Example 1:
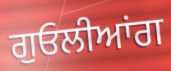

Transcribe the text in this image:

ਗੁਓਲੀਆਂਗ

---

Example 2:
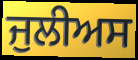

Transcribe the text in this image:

ਜੁਲੀਅਸ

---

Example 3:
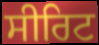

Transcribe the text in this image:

ਸੀਰਿਟ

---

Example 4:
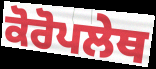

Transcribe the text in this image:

ਕੋਰੋਪਲੇਥ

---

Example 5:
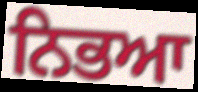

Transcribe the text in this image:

ਨਿਭਆ